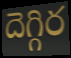
దెగ్గిర